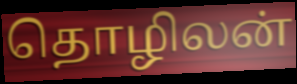
தொழிலன்